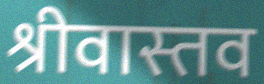
श्रीवास्तव